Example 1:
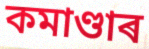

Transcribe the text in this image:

কমাণ্ডাৰ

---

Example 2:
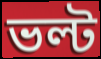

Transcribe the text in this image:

ভল্ট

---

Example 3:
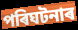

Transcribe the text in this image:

পৰিঘটনাৰ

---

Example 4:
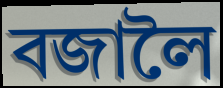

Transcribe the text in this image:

বজালৈ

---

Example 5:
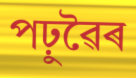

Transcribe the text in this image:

পঢ়ুৱৈৰ